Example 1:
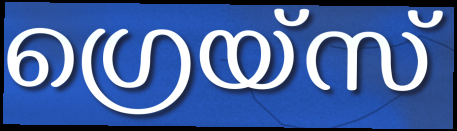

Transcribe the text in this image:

ഗ്രെയ്സ്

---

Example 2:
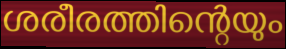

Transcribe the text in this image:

ശരീരത്തിന്റെയും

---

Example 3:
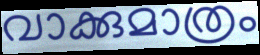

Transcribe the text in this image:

വാക്കുമാത്രം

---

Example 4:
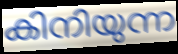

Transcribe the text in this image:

കിനിയുന്ന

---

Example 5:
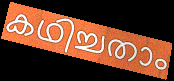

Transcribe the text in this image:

കഥിച്ചതാം